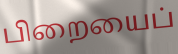
பிறையைப்